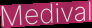
Medival